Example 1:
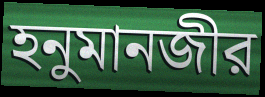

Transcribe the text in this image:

হনুমানজীর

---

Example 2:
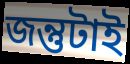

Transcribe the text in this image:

জন্তুটাই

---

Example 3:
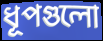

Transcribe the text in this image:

ধূপগুলো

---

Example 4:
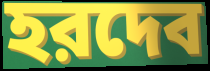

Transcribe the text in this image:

হরদেব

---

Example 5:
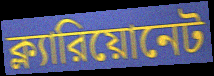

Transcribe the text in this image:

ক্ল্যারিয়োনেট